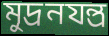
মুদ্রনযন্ত্র